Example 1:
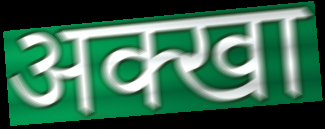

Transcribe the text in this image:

अक्खा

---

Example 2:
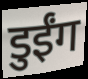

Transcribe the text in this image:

डुईंग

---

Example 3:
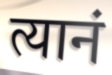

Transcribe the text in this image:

त्यानं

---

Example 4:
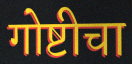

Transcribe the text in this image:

गोष्टीचा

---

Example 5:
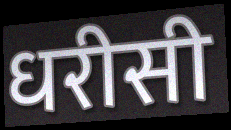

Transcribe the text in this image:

धरीसी